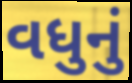
વધુનું